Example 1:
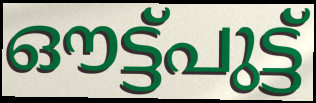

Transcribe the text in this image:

ഔട്ട്പുട്ട്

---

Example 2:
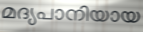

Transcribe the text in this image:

മദ്യപാനിയായ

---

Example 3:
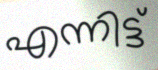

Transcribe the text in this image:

എന്നിട്ട്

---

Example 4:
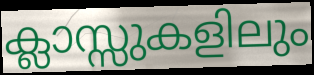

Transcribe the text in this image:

ക്ലാസ്സുകളിലും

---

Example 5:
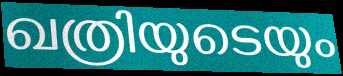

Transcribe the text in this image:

ഖത്രിയുടെയും